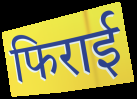
फिराई